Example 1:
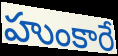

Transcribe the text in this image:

హుంకారే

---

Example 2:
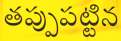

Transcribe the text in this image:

తప్పుపట్టిన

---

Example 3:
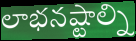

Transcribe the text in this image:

లాభనష్టాల్ని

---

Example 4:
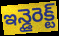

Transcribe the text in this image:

ఇన్డైరెక్ట్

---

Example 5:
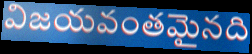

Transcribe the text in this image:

విజయవంతమైనది